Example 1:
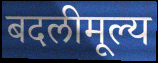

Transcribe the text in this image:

बदलीमूल्य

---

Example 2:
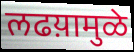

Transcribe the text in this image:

लढय़ामुळे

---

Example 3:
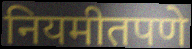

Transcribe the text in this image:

नियमीतपणे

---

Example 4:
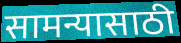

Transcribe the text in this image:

सामन्यासाठी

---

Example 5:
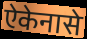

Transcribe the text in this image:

ऐकेनासे